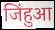
जिंहुआ